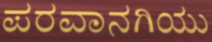
ಪರವಾನಗಿಯು